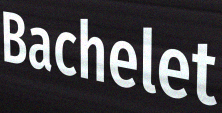
Bachelet